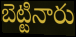
బెట్టినారు